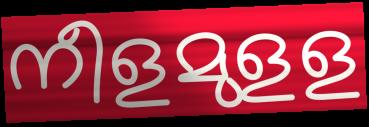
നീളമുളള